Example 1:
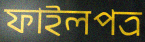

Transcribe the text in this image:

ফাইলপত্র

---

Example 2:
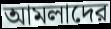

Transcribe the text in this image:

আমলাদের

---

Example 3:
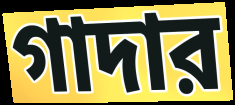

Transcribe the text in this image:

গাদার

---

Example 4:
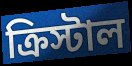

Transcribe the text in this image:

ক্রিস্টাল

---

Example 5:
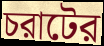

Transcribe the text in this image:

চরাটের